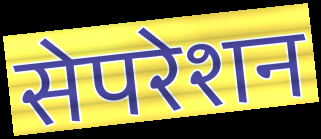
सेपरेशन